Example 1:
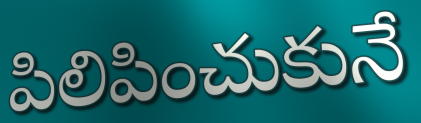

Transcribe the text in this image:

పిలిపించుకునే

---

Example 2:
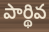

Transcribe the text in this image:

పార్థివ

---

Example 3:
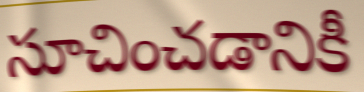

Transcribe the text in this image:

సూచించడానికీ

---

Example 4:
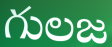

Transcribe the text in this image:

గులజ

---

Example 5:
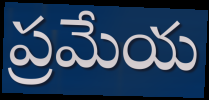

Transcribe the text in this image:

ప్రమేయ